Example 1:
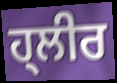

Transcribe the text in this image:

ਹ੍ਲੀਰ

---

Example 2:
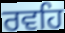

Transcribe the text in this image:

ਰਵਹਿ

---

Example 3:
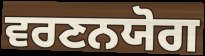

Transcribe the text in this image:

ਵਰਣਨਯੋਗ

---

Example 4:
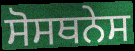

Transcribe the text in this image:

ਸੋਸਥਨੇਸ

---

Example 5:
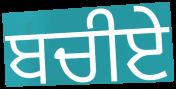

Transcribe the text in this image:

ਬਚੀਏ